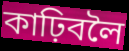
কাঢ়িবলৈ